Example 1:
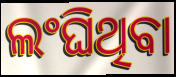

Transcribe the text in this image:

ଲଂଘିଥିବା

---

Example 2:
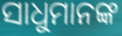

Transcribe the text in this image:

ସାଧୁମାନଙ୍କ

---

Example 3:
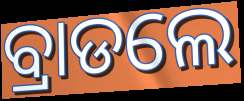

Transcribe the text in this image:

ବ୍ରାଡଲେ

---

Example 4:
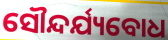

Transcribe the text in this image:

ସୌନ୍ଦର୍ଯ୍ୟବୋଧ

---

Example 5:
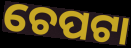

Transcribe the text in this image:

ଚେପଟା